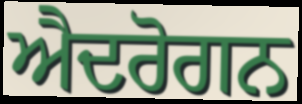
ਐਦਰੋਗਨ